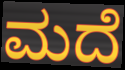
ಮದೆ